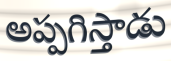
అప్పగిస్తాడు